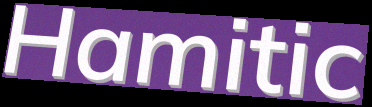
Hamitic